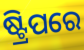
ଷ୍ଟ୍ରିପରେ